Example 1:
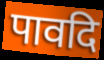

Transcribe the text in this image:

पावदि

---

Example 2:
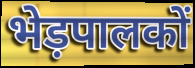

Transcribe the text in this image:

भेड़पालकों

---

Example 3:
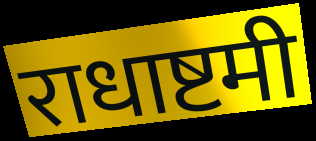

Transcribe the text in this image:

राधाष्टमी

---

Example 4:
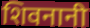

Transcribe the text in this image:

शिवनानी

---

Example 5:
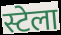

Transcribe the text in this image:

स्टेला